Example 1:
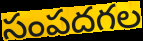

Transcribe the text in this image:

సంపదగల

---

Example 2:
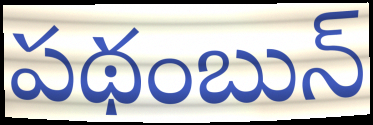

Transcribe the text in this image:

పథంబున్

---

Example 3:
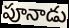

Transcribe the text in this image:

పూనాడు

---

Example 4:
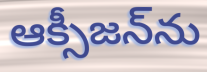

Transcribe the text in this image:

ఆక్సీజన్‌ను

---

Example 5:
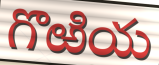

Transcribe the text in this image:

గొఱియ